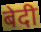
बेदी